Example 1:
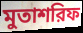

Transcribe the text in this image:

মুতাশরিফ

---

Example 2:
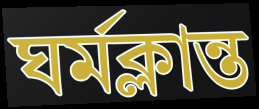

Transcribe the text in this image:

ঘর্মক্লান্ত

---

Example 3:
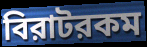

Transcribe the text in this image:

বিরাটরকম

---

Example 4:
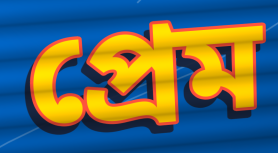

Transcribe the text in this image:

প্রেম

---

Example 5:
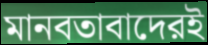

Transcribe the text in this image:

মানবতাবাদেরই